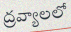
ద్రవ్యాలలో